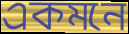
একমনে